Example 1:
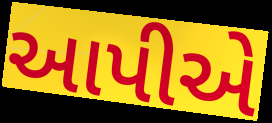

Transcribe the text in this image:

આપીએ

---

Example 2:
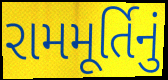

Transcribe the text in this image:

રામમૂર્તિનું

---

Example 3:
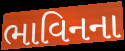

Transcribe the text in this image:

ભાવિનના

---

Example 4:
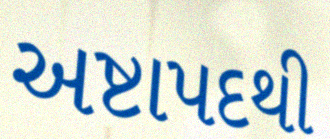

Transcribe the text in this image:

અષ્ટાપદથી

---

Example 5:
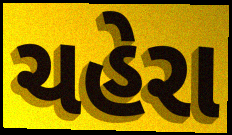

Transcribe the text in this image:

ચહેરા